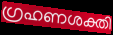
ഗ്രഹണശക്തി